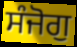
ਸੰਜੋਗੁ